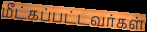
மீட்கப்பட்டவர்கள்